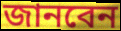
জানবেন